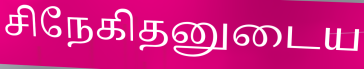
சிநேகிதனுடைய